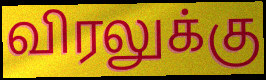
விரலுக்கு